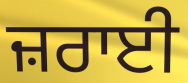
ਜ਼ਰਾਈ